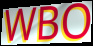
WBO